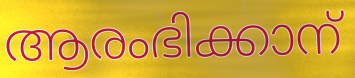
ആരംഭിക്കാന്